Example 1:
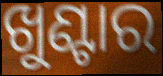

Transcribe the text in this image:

ଖୁଣ୍ଟାର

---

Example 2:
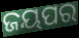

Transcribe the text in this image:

ଜୟପର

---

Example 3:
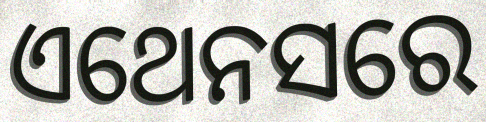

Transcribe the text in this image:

ଏଥେନସରେ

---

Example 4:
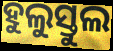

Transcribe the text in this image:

ହୁଲୁସ୍ତୁଲ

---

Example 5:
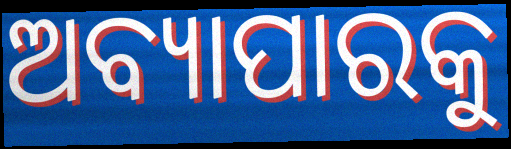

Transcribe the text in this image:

ଅବ୍ୟାପାରକୁ